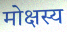
मोक्षस्य